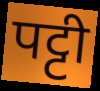
पट्टी